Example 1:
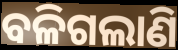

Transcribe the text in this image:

ବଳିଗଲାଣି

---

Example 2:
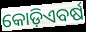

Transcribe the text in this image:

କୋଡ଼ିଏବର୍ଷ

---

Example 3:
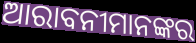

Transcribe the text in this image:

ଆରାବନୀମାନଙ୍କର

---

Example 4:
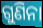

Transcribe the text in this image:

ଗୁଣିନା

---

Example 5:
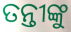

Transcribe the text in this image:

ତନ୍ତୀଙ୍କୁ